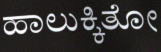
ಹಾಲುಕ್ಕಿತೋ